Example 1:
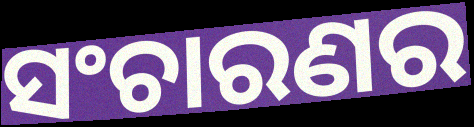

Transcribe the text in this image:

ସଂଚାରଣର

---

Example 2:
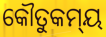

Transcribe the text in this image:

କୌତୁକମ୍‍ୟ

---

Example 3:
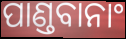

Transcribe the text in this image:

ପାଣ୍ଡବାନାଂ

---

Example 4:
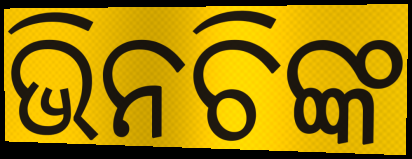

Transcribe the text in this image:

ଭିନଚିଙ୍କ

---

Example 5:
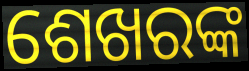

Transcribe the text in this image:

ଶେଖରଙ୍କ